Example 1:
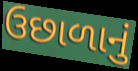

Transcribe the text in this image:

ઉછાળાનું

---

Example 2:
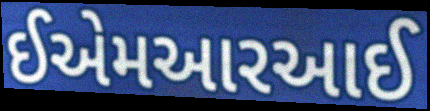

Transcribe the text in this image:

ઈએમઆરઆઈ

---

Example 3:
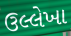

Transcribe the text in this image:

ઉલ્લેખા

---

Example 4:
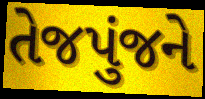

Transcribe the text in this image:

તેજપુંજને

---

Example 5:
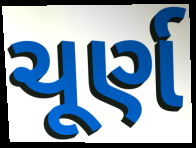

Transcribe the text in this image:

ચૂર્ણ